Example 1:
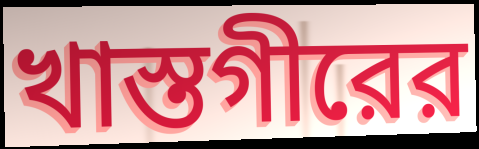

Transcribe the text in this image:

খাস্তগীরের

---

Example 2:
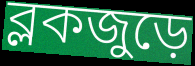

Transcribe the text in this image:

ব্লকজুড়ে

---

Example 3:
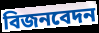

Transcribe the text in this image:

বিজনবেদন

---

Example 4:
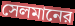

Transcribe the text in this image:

সেলমানের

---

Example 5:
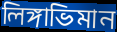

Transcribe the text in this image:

লিঙ্গাভিমান